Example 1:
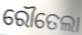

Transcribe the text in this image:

ରୌତେଲା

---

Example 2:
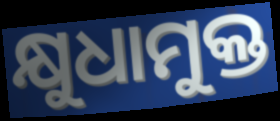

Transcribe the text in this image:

କ୍ଷୁଧାମୁକ୍ତ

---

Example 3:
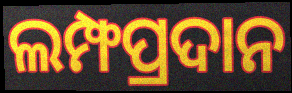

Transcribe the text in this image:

ଲମ୍ଫପ୍ରଦାନ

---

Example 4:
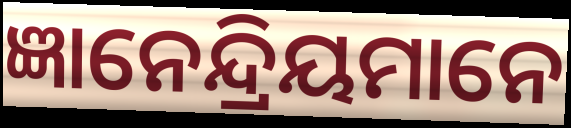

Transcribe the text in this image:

ଜ୍ଞାନେନ୍ଦ୍ରିୟମାନେ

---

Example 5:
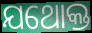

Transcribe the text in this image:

ଯଥୋକ୍ତ